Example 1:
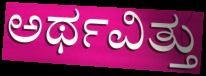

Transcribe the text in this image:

ಅರ್ಥವಿತ್ತು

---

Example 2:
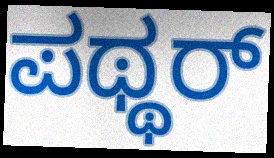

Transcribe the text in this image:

ಪಥ್ಥರ್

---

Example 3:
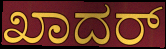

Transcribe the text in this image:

ಖಾದರ್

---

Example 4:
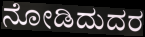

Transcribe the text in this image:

ನೋಡಿದುದರ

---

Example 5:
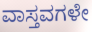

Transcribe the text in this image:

ವಾಸ್ತವಗಳೇ